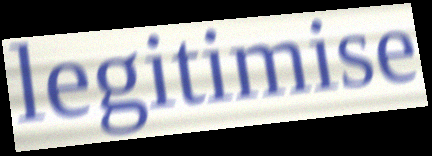
legitimise